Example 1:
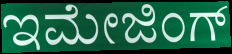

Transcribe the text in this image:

ಇಮೇಜಿಂಗ್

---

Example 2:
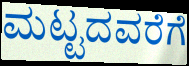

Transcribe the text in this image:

ಮಟ್ಟದವರೆಗೆ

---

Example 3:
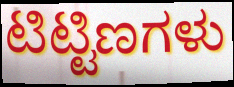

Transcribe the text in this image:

ಟಿಟ್ಟಿಣಗಳು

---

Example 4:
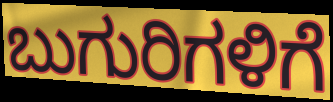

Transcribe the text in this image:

ಬುಗುರಿಗಳಿಗೆ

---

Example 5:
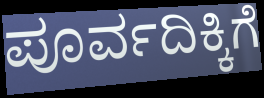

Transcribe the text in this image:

ಪೂರ್ವದಿಕ್ಕಿಗೆ